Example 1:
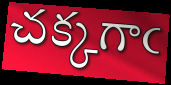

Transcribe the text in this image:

చక్కగాఁ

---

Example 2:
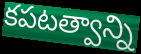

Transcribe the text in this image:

కపటత్వాన్ని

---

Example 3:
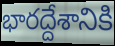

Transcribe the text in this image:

భారద్దేశానికి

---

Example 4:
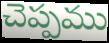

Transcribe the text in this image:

చెప్పము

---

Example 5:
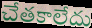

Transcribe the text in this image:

చేతకాలేదు